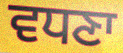
ਵਧਣਾ